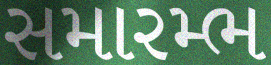
સમારમ્ભ